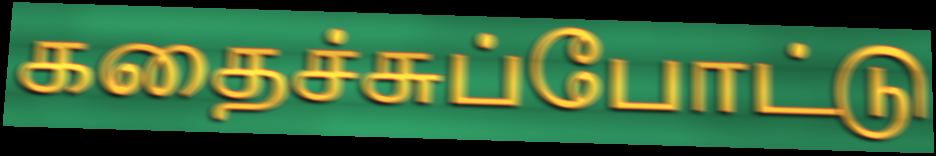
கதைச்சுப்போட்டு